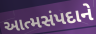
આત્મસંપદાને